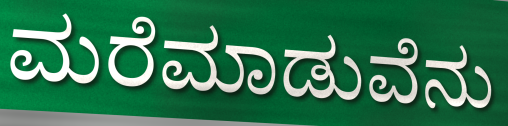
ಮರೆಮಾಡುವೆನು